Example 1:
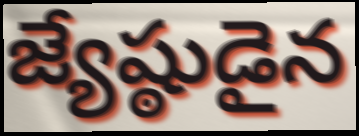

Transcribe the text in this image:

జ్యేష్ఠుడైన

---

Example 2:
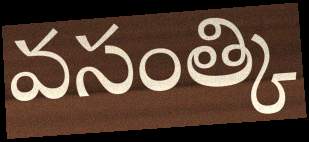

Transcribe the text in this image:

వసంత్కి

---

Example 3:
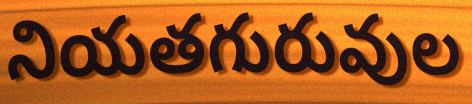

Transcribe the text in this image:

నియతగురువుల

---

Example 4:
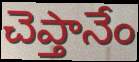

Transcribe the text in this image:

చెప్తానేం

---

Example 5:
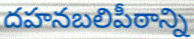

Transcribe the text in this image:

దహనబలిపీఠాన్ని